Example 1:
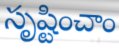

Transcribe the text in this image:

సృష్టించాం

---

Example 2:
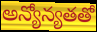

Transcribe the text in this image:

అన్యోన్యతతో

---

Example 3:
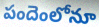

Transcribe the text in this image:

పందెంలోనూ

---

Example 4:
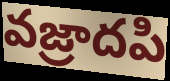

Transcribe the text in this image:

వజ్రాదపి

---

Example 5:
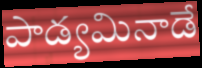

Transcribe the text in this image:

పాడ్యమినాడే